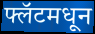
फ्लॅटमधून